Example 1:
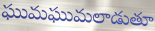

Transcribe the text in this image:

ఘుమఘుమలాడుతూ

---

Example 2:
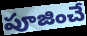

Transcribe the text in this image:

పూజించే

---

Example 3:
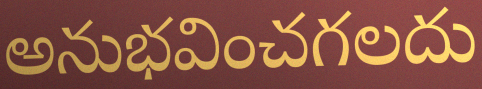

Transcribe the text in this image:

అనుభవించగలదు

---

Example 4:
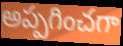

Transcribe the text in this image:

అప్పగించగా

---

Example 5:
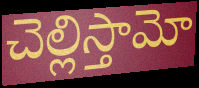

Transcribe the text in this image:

చెల్లిస్తామో